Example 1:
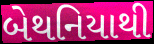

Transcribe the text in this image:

બેથનિયાથી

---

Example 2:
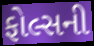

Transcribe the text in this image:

ફોલ્સની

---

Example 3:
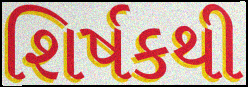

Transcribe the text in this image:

શિર્ષકથી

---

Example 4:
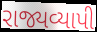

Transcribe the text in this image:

રાજ્યવ્યાપી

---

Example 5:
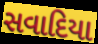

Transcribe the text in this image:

સવાદિયા